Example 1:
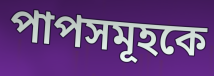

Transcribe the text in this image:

পাপসমূহকে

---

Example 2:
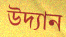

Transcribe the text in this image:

উদ্যান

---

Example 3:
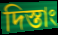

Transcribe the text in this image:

দিস্তাং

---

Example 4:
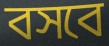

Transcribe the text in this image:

বসবে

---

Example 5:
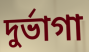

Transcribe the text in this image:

দুর্ভাগা